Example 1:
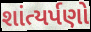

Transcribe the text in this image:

શાંત્યર્પણો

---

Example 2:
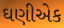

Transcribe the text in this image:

ઘણીએક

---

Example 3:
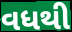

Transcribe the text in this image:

વધથી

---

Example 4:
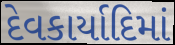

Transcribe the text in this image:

દેવકાર્યાદિમાં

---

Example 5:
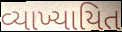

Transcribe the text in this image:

વ્યાખ્યાયિત